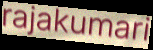
rajakumari